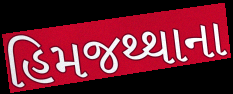
હિમજથ્થાના